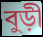
বুড়ী